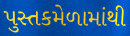
પુસ્તકમેળામાંથી